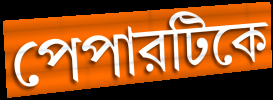
পেপারটিকে